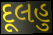
દૂલહુ